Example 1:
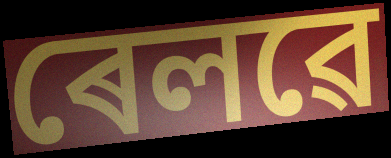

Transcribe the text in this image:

ৰেলৱে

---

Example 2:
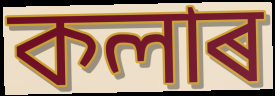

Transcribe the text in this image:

কলাৰ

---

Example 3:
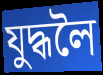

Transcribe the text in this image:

যুদ্ধলৈ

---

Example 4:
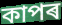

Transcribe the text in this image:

কাপৰ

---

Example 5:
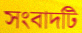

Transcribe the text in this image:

সংবাদটি